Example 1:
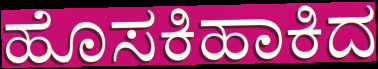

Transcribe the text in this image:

ಹೊಸಕಿಹಾಕಿದ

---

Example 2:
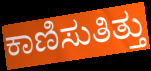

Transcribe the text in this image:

ಕಾಣಿಸುತಿತ್ತು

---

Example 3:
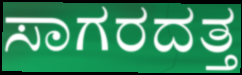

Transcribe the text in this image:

ಸಾಗರದತ್ತ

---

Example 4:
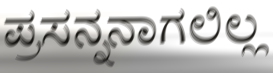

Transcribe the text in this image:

ಪ್ರಸನ್ನನಾಗಲಿಲ್ಲ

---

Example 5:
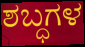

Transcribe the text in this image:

ಶಬ್ಧಗಳ